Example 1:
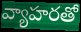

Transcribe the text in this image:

వ్యాహరతో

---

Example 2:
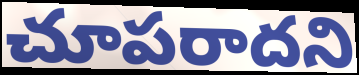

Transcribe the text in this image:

చూపరాదని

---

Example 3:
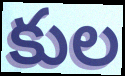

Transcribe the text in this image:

కుల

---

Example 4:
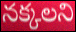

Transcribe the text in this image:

నక్కలని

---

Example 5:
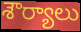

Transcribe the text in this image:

శౌర్యాలు